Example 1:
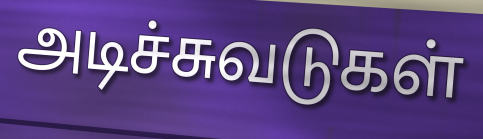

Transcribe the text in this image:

அடிச்சுவடுகள்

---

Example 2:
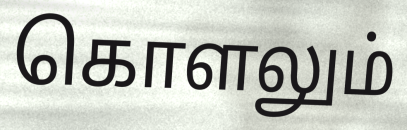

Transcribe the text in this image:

கொளலும்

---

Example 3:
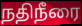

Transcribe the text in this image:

நதிநீரை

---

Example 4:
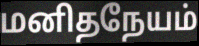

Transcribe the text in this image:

மனிதநேயம்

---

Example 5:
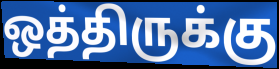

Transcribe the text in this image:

ஒத்திருக்கு